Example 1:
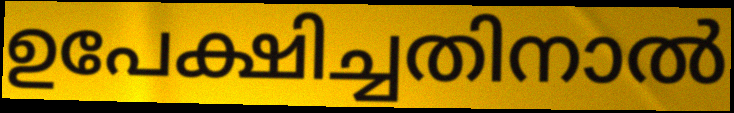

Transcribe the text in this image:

ഉപേക്ഷിച്ചതിനാൽ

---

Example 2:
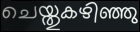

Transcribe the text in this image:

ചെയ്തുകഴിഞ്ഞു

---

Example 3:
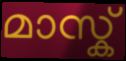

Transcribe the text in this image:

മാസ്ക്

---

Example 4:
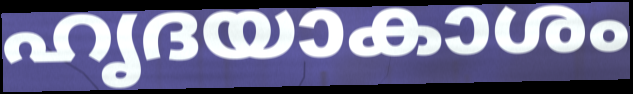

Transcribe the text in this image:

ഹൃദയാകാശം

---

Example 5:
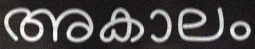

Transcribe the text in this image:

അകാലം